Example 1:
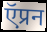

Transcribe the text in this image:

ऍप्रन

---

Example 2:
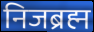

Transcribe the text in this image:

निजब्रह्म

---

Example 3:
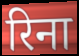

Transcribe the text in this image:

रिना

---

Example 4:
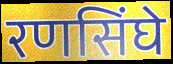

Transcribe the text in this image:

रणसिंघे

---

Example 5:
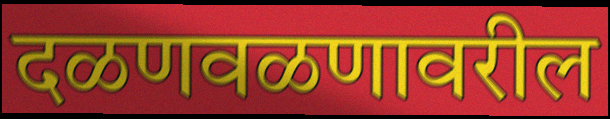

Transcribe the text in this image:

दळणवळणावरील